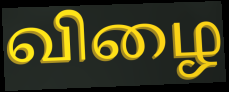
விழை